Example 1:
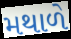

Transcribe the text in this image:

મથાળે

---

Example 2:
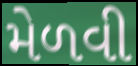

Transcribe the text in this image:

મેળવી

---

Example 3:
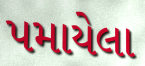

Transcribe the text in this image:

પમાયેલા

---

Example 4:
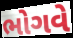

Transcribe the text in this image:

ભોગવે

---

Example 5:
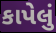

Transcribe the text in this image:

કાપેલું